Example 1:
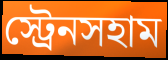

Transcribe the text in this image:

স্ট্রেনসহাম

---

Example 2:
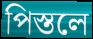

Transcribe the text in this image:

পিস্তলে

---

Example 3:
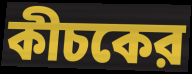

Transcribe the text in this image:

কীচকের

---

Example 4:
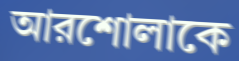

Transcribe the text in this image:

আরশোলাকে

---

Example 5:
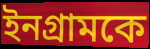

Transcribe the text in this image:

ইনগ্রামকে